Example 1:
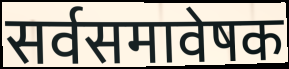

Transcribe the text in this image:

सर्वसमावेषक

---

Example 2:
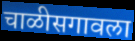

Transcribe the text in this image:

चाळीसगावला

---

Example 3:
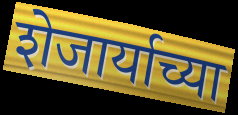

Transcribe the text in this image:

शेजार्याच्या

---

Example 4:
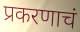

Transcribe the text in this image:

प्रकरणाचं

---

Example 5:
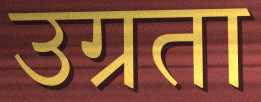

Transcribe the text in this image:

उग्रता